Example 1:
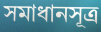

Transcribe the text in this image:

সমাধানসূত্র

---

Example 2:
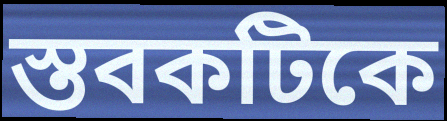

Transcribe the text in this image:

স্তবকটিকে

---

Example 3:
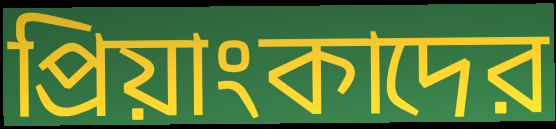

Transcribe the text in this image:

প্রিয়াংকাদের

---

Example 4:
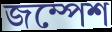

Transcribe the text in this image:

জম্পেশ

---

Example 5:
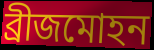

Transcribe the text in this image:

ব্রীজমোহন